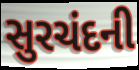
સુરચંદની